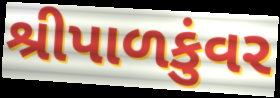
શ્રીપાળકુંવર